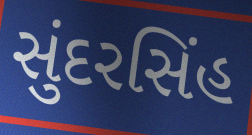
સુંદરસિંહ